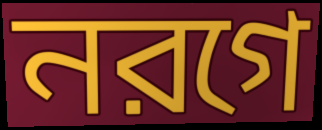
নরগে